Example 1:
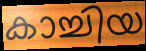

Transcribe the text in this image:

കാച്ചിയ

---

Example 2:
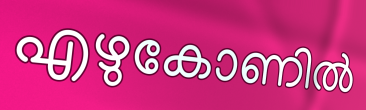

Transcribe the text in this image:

എഴുകോണിൽ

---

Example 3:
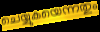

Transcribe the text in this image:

ചെയ്യുകയെന്നതും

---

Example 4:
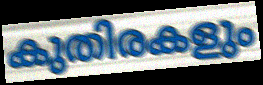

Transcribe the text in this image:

കുതിരകളും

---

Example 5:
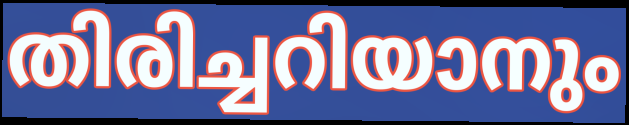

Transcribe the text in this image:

തിരിച്ചറിയാനും